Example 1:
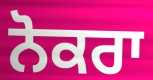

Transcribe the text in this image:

ਨੋਕਰਾ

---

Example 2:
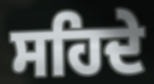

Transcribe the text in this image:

ਸਹਿਦੇ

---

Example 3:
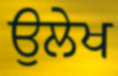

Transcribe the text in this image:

ਉਲੇਖ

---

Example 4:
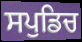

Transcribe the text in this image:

ਸਪੁਡਿਚ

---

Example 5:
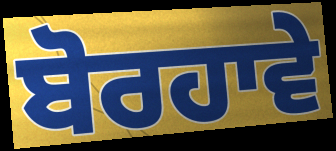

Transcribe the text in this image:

ਬੋਰਹਾਵੇ